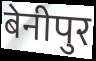
बेनीपुर